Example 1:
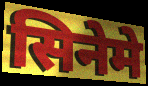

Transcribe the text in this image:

सिनेमे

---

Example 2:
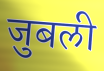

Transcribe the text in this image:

जुबली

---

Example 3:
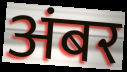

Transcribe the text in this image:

अंबर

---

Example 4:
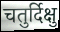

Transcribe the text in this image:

चतुर्दिक्षु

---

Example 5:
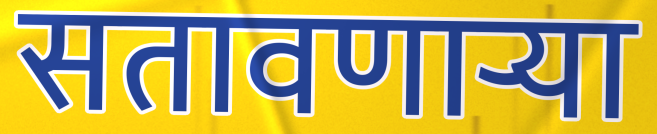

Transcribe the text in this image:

सतावणार्‍या